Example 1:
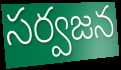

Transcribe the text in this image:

సర్వజన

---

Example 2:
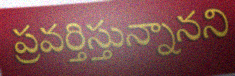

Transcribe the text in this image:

ప్రవర్తిస్తున్నానని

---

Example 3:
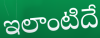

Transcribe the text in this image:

ఇలాంటిదే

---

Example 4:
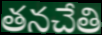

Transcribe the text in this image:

తనచేతి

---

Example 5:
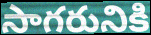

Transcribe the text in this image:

సాగరునికి